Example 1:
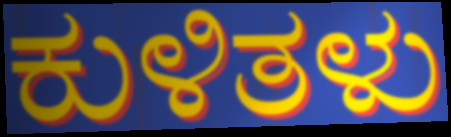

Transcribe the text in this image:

ಕುಳಿತಳು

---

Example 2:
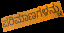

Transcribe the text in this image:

ಪರಿಮಾಣಗಳನ್ನು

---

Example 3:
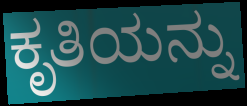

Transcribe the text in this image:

ಕೃತಿಯನ್ನು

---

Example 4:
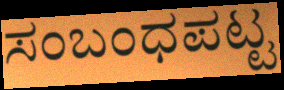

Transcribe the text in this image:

ಸಂಬಂಧಪಟ್ಟ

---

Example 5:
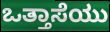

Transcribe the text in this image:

ಒತ್ತಾಸೆಯು